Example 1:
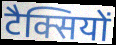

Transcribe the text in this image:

टैक्सियों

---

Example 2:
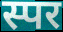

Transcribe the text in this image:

स्पर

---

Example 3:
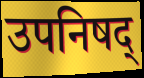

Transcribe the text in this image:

उपनिषद्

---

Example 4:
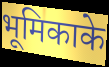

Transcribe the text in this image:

भूमिकाके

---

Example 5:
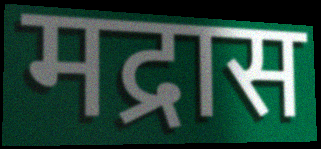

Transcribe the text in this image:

मद्रास